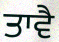
ਤਾਵੈ